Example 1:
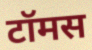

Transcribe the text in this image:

टॉमस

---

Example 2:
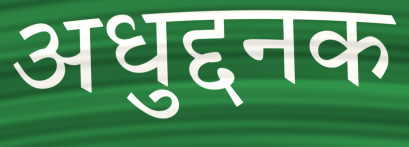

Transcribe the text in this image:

अधुद्दनक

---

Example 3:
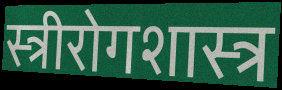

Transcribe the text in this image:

स्त्रीरोगशास्त्र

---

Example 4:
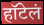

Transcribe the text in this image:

हॉटेलं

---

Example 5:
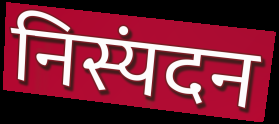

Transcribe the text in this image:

निस्यंदन